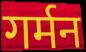
गर्मन